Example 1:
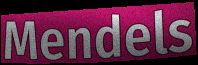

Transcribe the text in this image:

Mendels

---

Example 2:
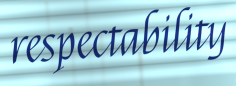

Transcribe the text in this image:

respectability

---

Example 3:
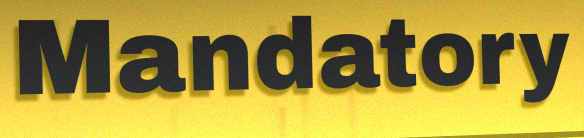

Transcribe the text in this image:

Mandatory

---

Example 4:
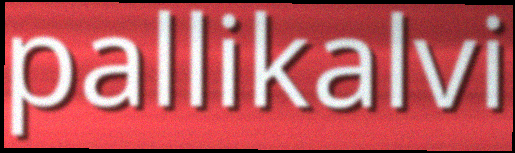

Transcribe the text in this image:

pallikalvi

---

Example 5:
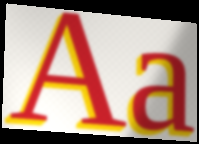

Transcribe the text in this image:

Aa